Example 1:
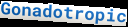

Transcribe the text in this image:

Gonadotropic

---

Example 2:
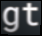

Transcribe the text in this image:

gt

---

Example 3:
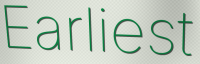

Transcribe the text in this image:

Earliest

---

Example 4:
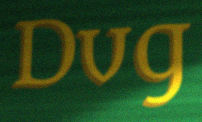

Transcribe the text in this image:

Dug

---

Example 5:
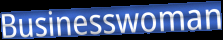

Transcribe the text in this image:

Businesswoman